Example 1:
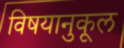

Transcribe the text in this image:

विषयानुकूल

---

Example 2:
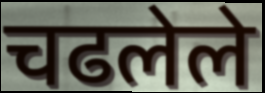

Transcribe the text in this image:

चढलेले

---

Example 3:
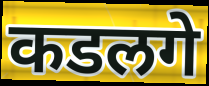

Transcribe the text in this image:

कडलगे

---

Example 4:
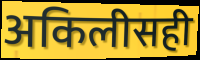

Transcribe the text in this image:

अकिलीसही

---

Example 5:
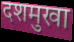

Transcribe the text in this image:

दशमुखा